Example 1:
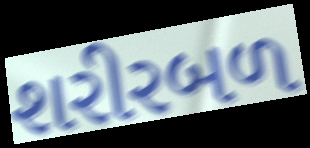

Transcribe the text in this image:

શરીરબળ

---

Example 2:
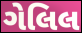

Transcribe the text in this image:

ગેલિલ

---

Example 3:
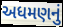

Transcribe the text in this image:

અધમણનું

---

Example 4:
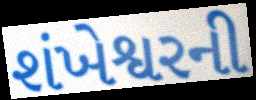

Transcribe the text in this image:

શંખેશ્વરની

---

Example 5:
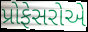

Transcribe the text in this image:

પ્રોફેસરોએ